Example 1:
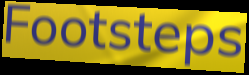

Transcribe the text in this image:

Footsteps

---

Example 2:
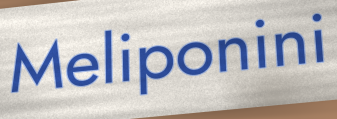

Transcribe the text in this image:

Meliponini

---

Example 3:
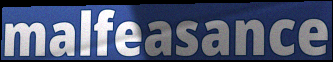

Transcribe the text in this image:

malfeasance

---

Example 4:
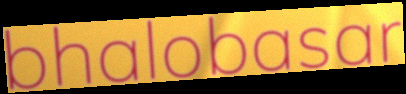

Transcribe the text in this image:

bhalobasar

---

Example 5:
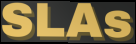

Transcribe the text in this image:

SLAs